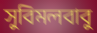
সুবিমলবাবু